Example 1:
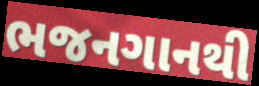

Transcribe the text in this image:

ભજનગાનથી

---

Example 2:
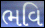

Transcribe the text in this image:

ભવિ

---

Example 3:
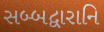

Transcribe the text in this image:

સબ્બદ્વારાનિ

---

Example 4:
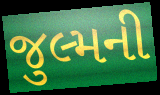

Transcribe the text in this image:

જુલ્મની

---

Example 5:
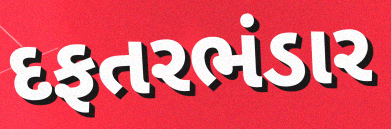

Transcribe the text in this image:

દફતરભંડાર